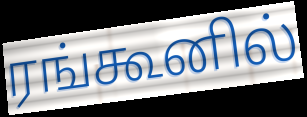
ரங்கூனில்